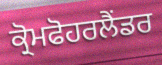
ਕ੍ਰੋਮਫੋਹਰਲੈਂਡਰ